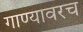
गाण्यावरच